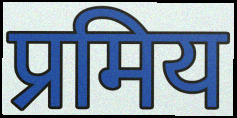
प्रमिय